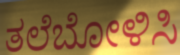
ತಲೆಬೋಳಿಸಿ